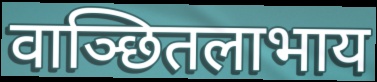
वाञ्छितलाभाय